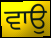
ਵਾਉ